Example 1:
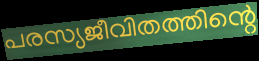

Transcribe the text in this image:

പരസ്യജീവിതത്തിന്റെ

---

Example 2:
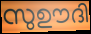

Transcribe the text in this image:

സുഊദി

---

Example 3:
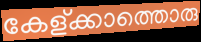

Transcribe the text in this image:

കേള്ക്കാത്തൊരു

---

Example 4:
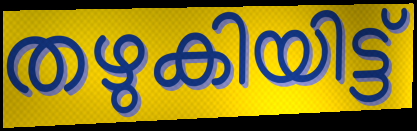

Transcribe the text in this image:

തഴുകിയിട്ട്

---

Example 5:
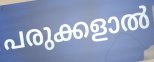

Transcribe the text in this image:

പരുക്കളാൽ